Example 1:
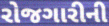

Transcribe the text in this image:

રોજગારીની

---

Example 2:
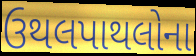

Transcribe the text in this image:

ઉથલપાથલોના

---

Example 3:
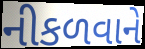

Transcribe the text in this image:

નીકળવાને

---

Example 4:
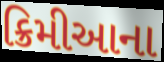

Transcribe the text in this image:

ક્રિમીઆના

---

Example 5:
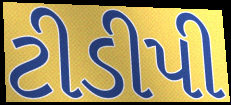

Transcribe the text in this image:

ટીડીપી